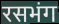
रसभंग